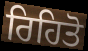
ਰਿਹਿਤੋ